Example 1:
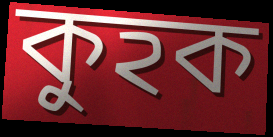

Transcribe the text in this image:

কুহক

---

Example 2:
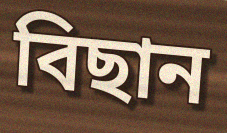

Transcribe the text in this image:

বিছান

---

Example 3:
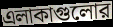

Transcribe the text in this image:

এলাকাগুলোর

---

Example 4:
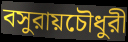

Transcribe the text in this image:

বসুরায়চৌধুরী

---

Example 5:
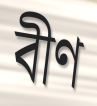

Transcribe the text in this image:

বীণ